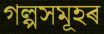
গল্পসমূহৰ